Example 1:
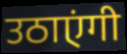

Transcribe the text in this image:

उठाएंगी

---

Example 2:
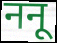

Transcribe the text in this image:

ननू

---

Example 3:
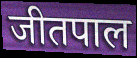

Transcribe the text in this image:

जीतपाल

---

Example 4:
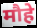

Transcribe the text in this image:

मौहे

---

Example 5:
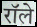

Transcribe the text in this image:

रॉले